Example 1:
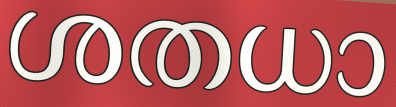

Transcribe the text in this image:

ശതധാ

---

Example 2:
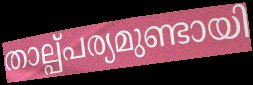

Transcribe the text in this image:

താല്പ്പര്യമുണ്ടായി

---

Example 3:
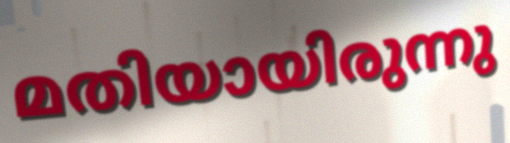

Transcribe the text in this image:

മതിയായിരുന്നു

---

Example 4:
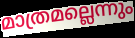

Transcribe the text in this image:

മാത്രമല്ലെന്നും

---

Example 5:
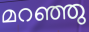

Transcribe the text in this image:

മറഞ്ഞു